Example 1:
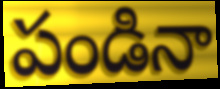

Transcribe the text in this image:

పండినా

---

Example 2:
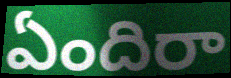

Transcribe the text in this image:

ఏందిరా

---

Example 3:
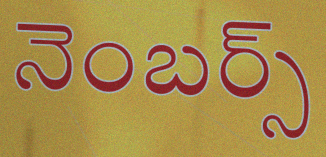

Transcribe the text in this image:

నెంబర్స్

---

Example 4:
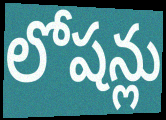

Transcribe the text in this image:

లోషన్లు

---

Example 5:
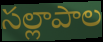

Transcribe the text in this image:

సల్లాపాల